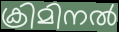
ക്രിമിനൽ